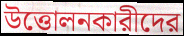
উত্তোলনকারীদের